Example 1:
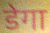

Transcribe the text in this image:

डेगा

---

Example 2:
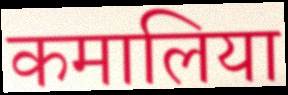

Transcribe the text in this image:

कमालिया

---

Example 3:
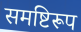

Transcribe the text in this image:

समष्टिरूप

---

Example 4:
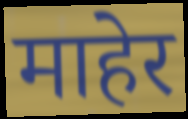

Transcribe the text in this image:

माहेर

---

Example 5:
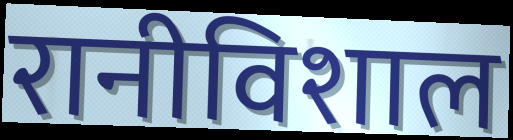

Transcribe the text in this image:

रानीविशाल